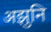
अझुनि